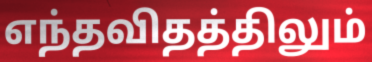
எந்தவிதத்திலும்